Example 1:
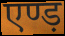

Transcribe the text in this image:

एण्ड़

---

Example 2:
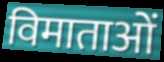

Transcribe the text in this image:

विमाताओं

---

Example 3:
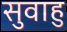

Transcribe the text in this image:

सुवाहु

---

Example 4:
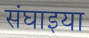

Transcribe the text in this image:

संघाइया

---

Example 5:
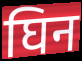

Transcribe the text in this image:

घिन